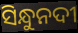
ସିନ୍ଧୁନଦୀ